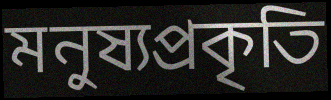
মনুষ্যপ্রকৃতি